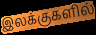
இலக்குகளில்